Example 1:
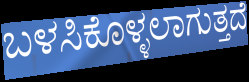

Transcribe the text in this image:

ಬಳಸಿಕೊಳ್ಳಲಾಗುತ್ತದೆ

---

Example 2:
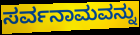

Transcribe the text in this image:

ಸರ್ವನಾಮವನ್ನು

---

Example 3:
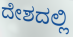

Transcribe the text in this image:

ದೇಶದಲ್ಲಿ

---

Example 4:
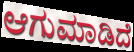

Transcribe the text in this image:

ಆಗುಮಾಡಿದೆ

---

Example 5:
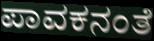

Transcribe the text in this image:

ಪಾವಕನಂತೆ